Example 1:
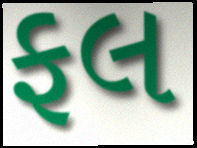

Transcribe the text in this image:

ફલ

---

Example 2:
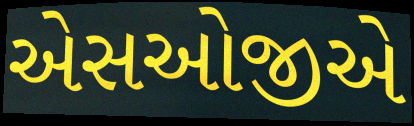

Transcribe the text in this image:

એસઓજીએ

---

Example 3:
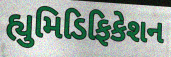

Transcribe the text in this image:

હ્યુમિડિફિકેશન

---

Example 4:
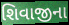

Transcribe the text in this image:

શિવાજીના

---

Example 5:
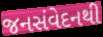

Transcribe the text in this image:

જનસંવેદનથી